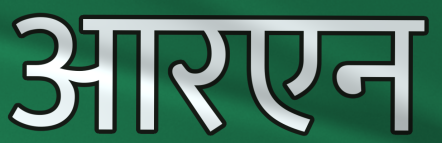
आरएन